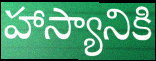
హాస్యానికి